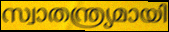
സ്വാതന്ത്ര്യമായി